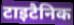
टाइटैनिक